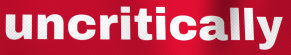
uncritically